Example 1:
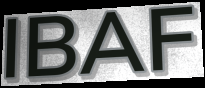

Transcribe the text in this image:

IBAF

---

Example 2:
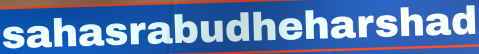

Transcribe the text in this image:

sahasrabudheharshad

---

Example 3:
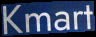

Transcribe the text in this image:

Kmart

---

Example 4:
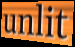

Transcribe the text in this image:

unlit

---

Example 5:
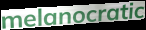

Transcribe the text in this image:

melanocratic